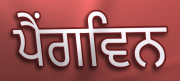
ਪੈਂਗਵਿਨ